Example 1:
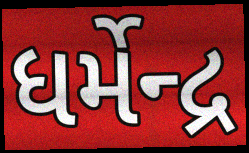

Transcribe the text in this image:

ધર્મેન્દ્ર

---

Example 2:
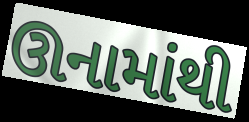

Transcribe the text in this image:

ઊનામાંથી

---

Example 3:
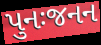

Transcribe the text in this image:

પુનઃજનન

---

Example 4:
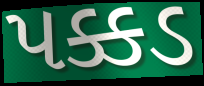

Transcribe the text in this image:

પક્કડ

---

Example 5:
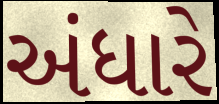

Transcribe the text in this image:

અંધારે